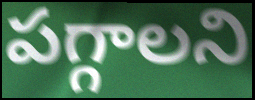
పగ్గాలని